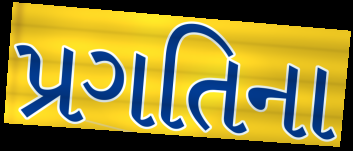
પ્રગતિના